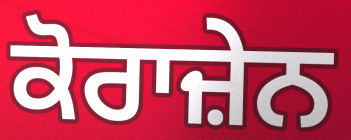
ਕੋਰਾਜ਼ੇਨ